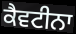
ਕੈਵਟੀਨਾ